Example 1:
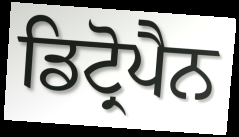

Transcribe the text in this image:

ਡਿਟ੍ਰੋਪੈਨ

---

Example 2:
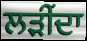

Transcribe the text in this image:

ਲੜੀਂਦਾ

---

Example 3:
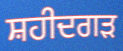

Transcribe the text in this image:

ਸ਼ਹੀਦਗੜ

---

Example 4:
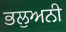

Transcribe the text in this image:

ਭਲੁਅਨੀ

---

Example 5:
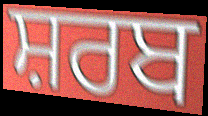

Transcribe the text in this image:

ਸ਼ਰਬ